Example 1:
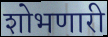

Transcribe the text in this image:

शोभणारी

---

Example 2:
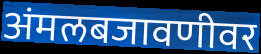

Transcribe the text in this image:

अंमलबजावणीवर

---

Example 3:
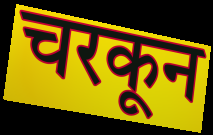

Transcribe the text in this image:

चरकून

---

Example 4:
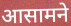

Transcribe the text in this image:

आसामने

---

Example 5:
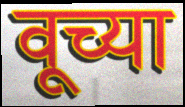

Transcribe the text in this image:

वूच्या